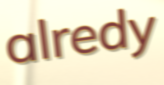
alredy